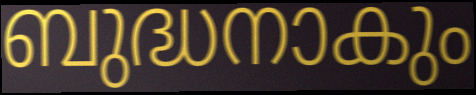
ബുദ്ധനാകും